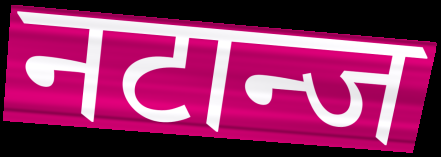
नटान्ज